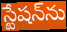
స్టేషన్‌ను